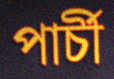
পাৰ্চী